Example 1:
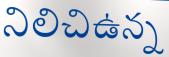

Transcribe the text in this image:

నిలిచిఉన్న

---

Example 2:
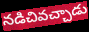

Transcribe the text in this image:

నడిచివచ్చాడు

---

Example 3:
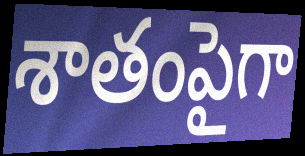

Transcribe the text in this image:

శాతంపైగా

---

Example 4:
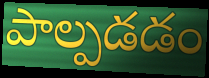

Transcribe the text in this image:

పాల్పడడం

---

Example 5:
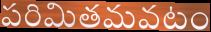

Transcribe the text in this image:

పరిమితమవటం